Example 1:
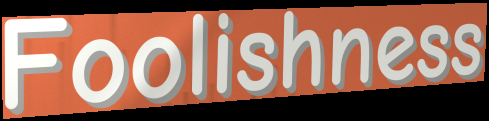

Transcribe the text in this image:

Foolishness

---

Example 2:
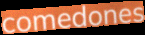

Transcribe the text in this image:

comedones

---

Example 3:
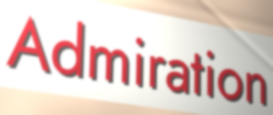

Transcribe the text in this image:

Admiration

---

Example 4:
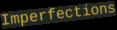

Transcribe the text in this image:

Imperfections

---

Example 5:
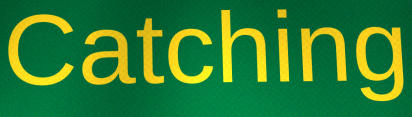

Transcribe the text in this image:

Catching